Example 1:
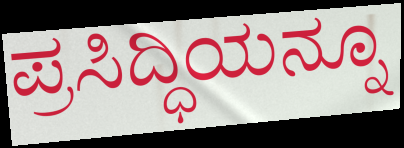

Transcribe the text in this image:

ಪ್ರಸಿದ್ಧಿಯನ್ನೂ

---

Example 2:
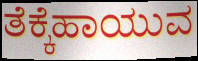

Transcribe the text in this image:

ತೆಕ್ಕೆಹಾಯುವ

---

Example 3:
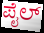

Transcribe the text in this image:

ಪೈಲ್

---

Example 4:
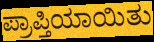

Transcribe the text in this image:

ಪ್ರಾಪ್ತಿಯಾಯಿತು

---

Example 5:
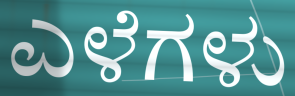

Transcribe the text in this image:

ಎಳೆಗಳು